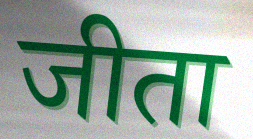
जीता